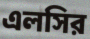
এলসির